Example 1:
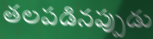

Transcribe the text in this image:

తలపడినప్పుడు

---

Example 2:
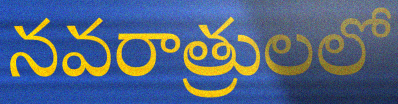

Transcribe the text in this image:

నవరాత్రులలో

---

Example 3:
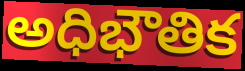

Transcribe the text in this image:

అధిభౌతిక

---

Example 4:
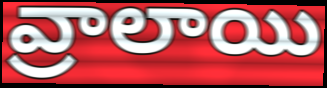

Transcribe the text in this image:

వ్రాలాయి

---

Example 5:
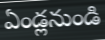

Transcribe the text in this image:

ఏండ్లనుండి